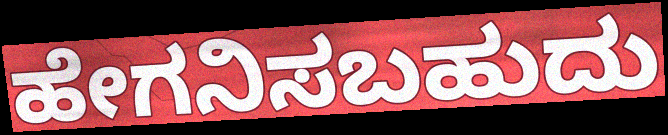
ಹೇಗನಿಸಬಹುದು